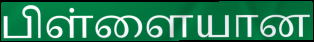
பிள்ளையான